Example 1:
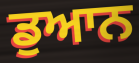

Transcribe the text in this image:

ਡੁਆਨ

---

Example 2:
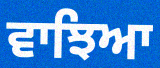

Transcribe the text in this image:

ਵਾਝਿਆ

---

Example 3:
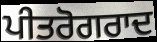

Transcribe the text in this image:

ਪੀਤਰੋਗਰਾਦ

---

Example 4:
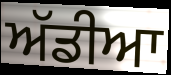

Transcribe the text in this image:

ਅੱਡੀਆ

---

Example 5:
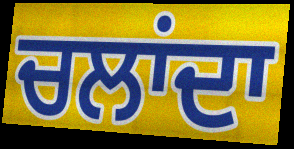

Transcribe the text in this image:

ਚਲਾਂਦਾ